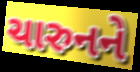
ચારુનને